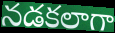
నడకలాగా